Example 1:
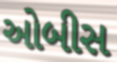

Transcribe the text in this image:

ઓબીસ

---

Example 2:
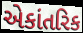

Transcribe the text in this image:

એકાંતરિક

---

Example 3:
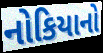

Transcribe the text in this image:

નોકિયાનો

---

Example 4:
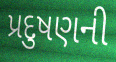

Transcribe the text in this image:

પ્રદુષણની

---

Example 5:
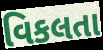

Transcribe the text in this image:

વિકલતા